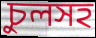
চুলসহ